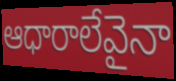
ఆధారాలేవైనా